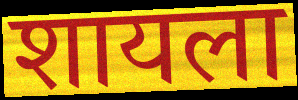
शायला